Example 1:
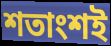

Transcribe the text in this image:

শতাংশই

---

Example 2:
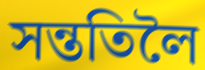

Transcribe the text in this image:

সন্ততিলৈ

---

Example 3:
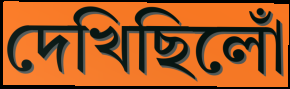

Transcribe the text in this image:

দেখিছিলোঁ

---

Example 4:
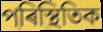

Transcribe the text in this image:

পৰিস্থিতিক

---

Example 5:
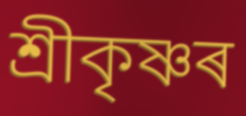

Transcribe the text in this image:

শ্ৰীকৃষ্ণৰ